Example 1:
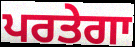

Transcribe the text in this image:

ਪਰਤੇਗਾ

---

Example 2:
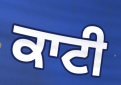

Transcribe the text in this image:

ਕਾਟੀ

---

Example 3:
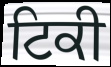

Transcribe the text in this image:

ਟਿਕੀ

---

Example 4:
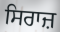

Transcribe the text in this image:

ਸਿਰਾਜ਼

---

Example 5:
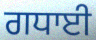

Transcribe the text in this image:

ਗਧਾਈ